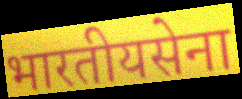
भारतीयसेना